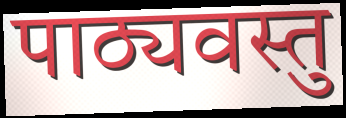
पाठ्यवस्तु